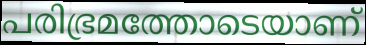
പരിഭ്രമത്തോടെയാണ്